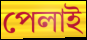
পেলাই